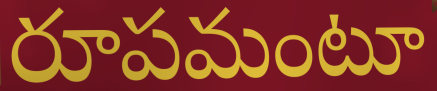
రూపమంటూ